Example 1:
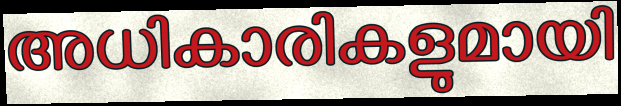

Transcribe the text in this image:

അധികാരികളുമായി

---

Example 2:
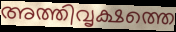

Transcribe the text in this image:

അത്തിവൃക്ഷത്തെ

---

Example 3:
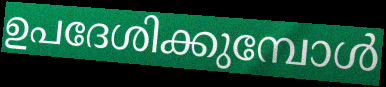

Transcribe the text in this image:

ഉപദേശിക്കുമ്പോൾ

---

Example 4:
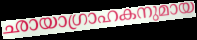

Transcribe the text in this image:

ഛായാഗ്രാഹകനുമായ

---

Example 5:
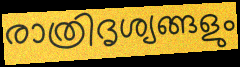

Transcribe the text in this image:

രാത്രിദൃശ്യങ്ങളും